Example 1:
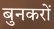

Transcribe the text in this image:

बुनकरों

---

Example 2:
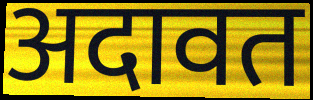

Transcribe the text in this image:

अदावत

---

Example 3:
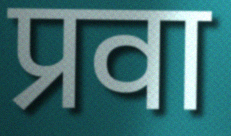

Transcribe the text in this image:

प्रवा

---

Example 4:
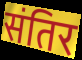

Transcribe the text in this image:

संतिर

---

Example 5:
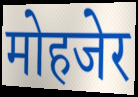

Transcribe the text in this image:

मोहजेर